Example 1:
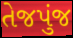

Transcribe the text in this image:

તેજપુંજ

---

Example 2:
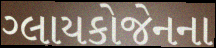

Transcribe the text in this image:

ગ્લાયકોજેનના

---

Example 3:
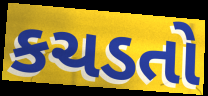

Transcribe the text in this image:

કચડતો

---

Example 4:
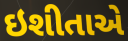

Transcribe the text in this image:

ઇશીતાએ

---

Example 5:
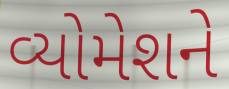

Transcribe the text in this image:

વ્યોમેશને